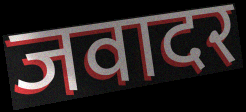
जवादर